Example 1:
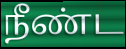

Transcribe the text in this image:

நீண்ட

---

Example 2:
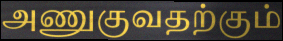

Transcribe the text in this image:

அணுகுவதற்கும்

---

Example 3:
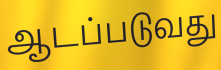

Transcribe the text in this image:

ஆடப்படுவது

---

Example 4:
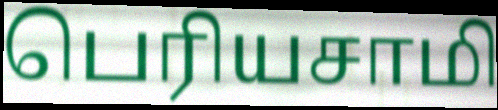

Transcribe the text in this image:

பெரியசாமி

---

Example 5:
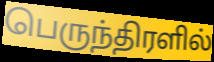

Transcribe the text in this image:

பெருந்திரளில்